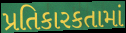
પ્રતિકારકતામાં